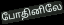
போதினிலே